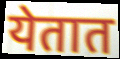
येतात